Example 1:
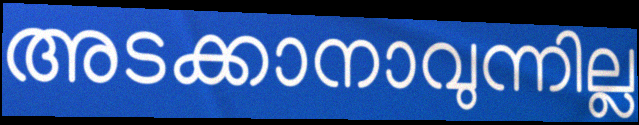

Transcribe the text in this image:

അടക്കാനാവുന്നില്ല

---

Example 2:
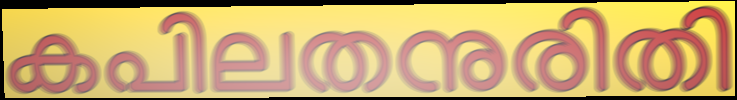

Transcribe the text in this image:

കപിലതനുരിതി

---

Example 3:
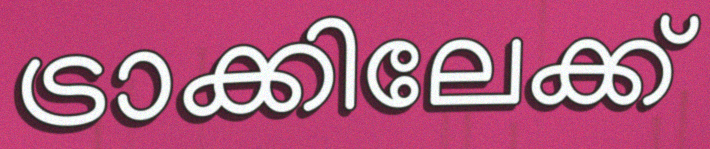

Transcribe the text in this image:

ട്രാക്കിലേക്ക്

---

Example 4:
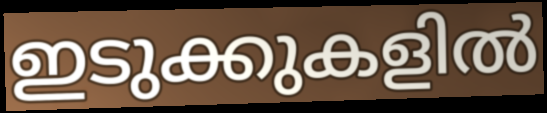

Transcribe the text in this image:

ഇടുക്കുകളിൽ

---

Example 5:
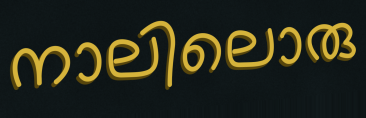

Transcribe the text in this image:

നാലിലൊരു